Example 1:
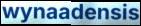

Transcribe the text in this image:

wynaadensis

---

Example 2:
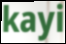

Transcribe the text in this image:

kayi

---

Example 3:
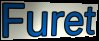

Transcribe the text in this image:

Furet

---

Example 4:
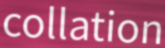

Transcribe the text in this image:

collation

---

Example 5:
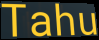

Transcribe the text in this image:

Tahu